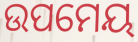
ଉପମେୟ